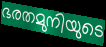
ഭരതമുനിയുടെ